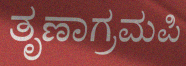
ತೃಣಾಗ್ರಮಪಿ